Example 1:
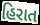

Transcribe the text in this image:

હિરાત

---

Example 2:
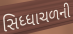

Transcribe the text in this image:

સિધ્ધાચળની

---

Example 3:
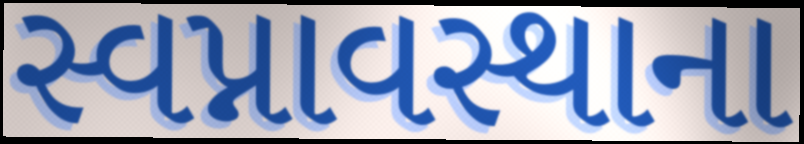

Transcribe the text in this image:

સ્વપ્નાવસ્થાના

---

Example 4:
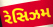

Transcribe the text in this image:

રેસિઝમ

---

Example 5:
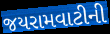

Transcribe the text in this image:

જયરામવાટીની